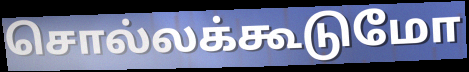
சொல்லக்கூடுமோ